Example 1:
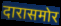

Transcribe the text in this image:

दारासमोर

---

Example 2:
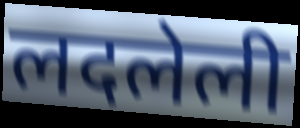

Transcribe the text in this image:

लदलेली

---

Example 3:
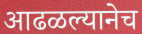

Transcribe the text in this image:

आढळल्यानेच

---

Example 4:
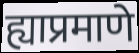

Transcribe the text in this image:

ह्याप्रमाणे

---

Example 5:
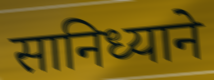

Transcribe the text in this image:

सानिध्याने